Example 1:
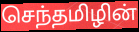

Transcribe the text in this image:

செந்தமிழின்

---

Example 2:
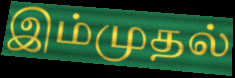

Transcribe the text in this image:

இம்முதல்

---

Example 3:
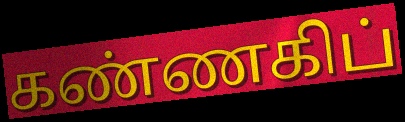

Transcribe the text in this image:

கண்ணகிப்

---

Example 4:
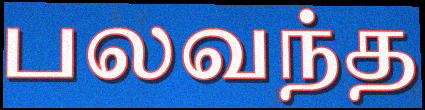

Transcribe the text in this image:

பலவந்த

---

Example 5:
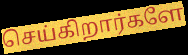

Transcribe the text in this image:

செய்கிறார்களே